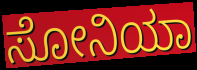
ಸೋನಿಯಾ